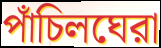
পাঁচিলঘেরা